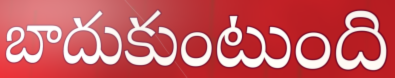
బాదుకుంటుంది